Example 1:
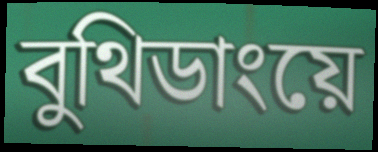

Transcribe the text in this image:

বুথিডাংয়ে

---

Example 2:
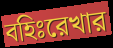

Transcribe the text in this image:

বহিঃরেখার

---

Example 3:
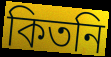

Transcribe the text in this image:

কিতনি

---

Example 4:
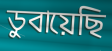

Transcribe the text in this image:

ডুবায়েছি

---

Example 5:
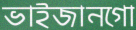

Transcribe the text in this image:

ভাইজানগো